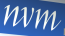
nvm